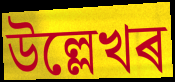
উল্লেখৰ